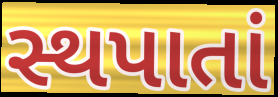
સ્થપાતાં